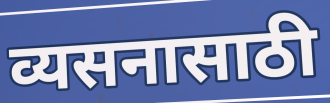
व्यसनासाठी